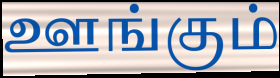
ஊங்கும்